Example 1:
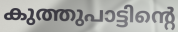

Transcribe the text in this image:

കുത്തുപാട്ടിന്റെ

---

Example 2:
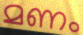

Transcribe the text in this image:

മണം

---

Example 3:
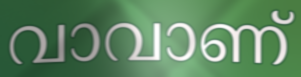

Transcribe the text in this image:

വാവാണ്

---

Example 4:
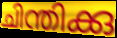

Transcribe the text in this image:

ചിന്തിക്കു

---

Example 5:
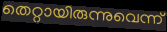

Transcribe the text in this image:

തെറ്റായിരുന്നുവെന്ന്